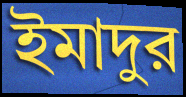
ইমাদুর